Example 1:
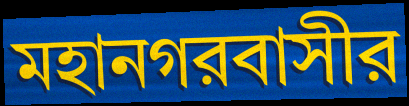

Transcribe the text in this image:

মহানগরবাসীর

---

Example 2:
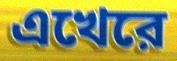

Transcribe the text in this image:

এখেরে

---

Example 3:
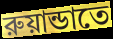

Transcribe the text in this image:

রুয়ান্ডাতে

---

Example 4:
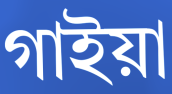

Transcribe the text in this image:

গাইয়া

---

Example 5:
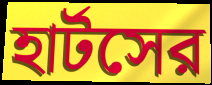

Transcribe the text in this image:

হার্টসের